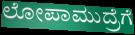
ಲೋಪಾಮುದ್ರೆಗೆ